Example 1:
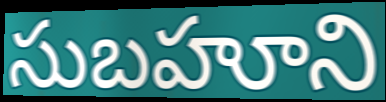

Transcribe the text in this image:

సుబహూని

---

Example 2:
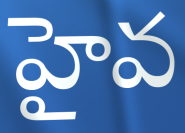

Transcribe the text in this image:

హైవ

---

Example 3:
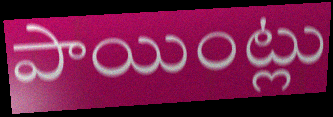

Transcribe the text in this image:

పాయింట్లు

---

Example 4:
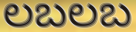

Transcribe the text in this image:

లబలబ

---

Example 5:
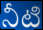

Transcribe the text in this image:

నీటి